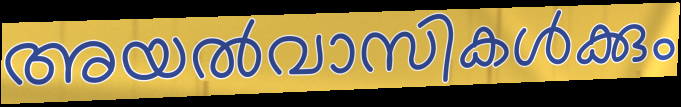
അയൽവാസികൾക്കും